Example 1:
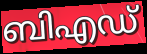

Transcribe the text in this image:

ബിഎഡ്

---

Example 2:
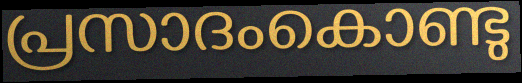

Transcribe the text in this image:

പ്രസാദംകൊണ്ടു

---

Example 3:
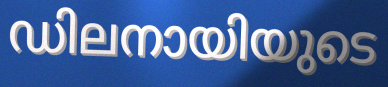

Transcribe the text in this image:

ഡിലനായിയുടെ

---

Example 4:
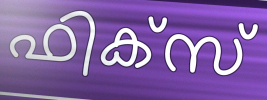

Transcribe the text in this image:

ഫിക്സ്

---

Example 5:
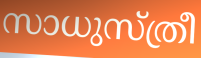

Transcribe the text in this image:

സാധുസ്ത്രീ